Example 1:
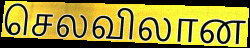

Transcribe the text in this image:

செலவிலான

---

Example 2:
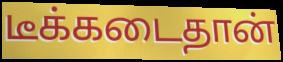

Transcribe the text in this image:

டீக்கடைதான்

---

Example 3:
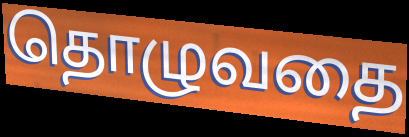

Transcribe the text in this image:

தொழுவதை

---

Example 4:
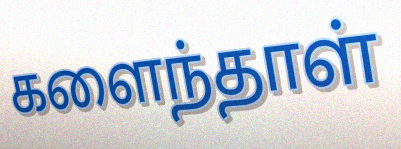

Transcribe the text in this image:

களைந்தாள்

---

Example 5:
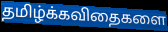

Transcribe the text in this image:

தமிழ்க்கவிதைகளை